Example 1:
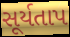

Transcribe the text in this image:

સૂર્યતાપ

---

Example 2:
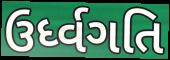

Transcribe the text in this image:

ઉર્ધ્વગતિ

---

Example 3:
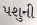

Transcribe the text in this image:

પશુની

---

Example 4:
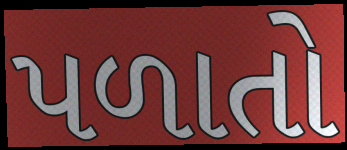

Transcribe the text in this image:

પળાતો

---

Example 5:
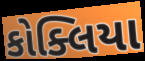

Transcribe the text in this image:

કોક્લિયા